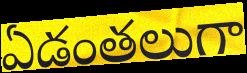
ఏడంతలుగా